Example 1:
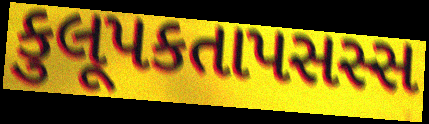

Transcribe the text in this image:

કુલૂપકતાપસસ્સ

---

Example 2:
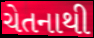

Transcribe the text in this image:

ચેતનાથી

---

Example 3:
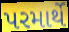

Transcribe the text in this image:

પરમાર્થે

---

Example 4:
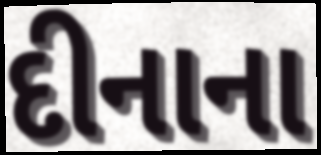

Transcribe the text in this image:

દીનાના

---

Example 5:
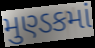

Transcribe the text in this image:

મુણ્ડકમાં